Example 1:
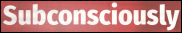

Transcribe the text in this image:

Subconsciously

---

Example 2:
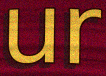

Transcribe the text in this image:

ur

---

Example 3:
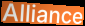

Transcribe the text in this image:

Alliance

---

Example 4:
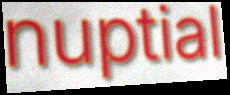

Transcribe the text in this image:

nuptial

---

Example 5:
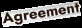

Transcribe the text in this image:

Agreement